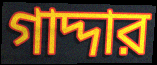
গাদ্দার